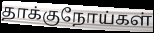
தாக்குநோய்கள்